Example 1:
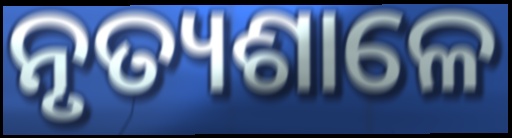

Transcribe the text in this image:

ନୃତ୍ୟଶାଳେ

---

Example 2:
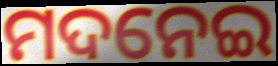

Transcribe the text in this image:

ମଦନେଇ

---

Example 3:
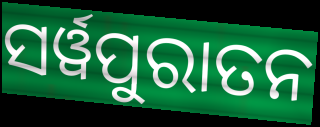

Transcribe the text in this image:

ସର୍ୱପୁରାତନ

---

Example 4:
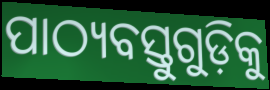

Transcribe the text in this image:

ପାଠ୍ୟବସ୍ତୁଗୁଡ଼ିକୁ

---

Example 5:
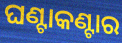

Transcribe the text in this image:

ଘଣ୍ଟାକଣ୍ଟାର